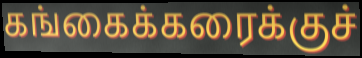
கங்கைக்கரைக்குச்